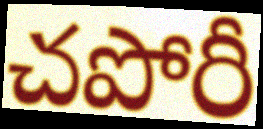
చపోరీ